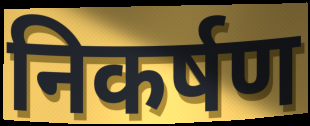
निकर्षण